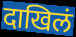
दाखिलं